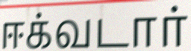
ஈக்வடார்